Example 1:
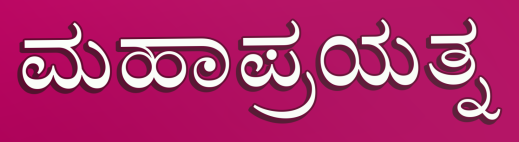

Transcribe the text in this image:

ಮಹಾಪ್ರಯತ್ನ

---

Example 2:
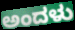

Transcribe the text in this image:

ಅಂದಳು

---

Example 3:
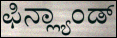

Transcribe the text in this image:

ಫಿನ್ಲ್ಯಾಂಡ್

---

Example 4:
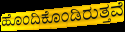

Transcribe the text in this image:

ಹೊಂದಿಕೊಂಡಿರುತ್ತವೆ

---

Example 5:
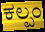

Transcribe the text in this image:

ಕಲ್ಪಂ